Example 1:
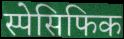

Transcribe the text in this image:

स्पेसिफिक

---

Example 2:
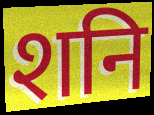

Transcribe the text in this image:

शनि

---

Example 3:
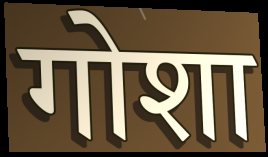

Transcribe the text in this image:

गोशा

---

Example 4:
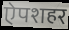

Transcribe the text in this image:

ऐपशहर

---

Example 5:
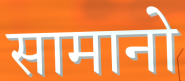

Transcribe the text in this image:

सामानो